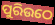
ପୁରିଉଠେ